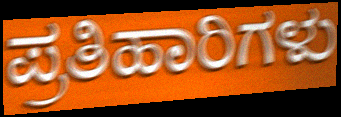
ಪ್ರತಿಹಾರಿಗಳು